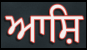
ਆਸ਼ਿ